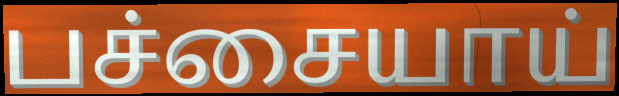
பச்சையாய்